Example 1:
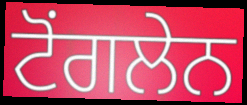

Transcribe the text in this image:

ਟੋਂਗਲੇਨ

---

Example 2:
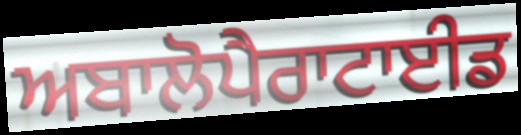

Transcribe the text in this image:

ਅਬਾਲੋਪੈਰਾਟਾਈਡ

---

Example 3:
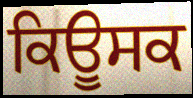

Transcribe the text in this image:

ਕਿਊਸਕ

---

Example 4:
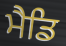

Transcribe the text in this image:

ਮੈਡਿ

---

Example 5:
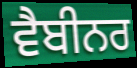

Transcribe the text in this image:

ਵੈਬੀਨਰ